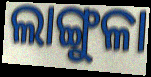
ଲାଙ୍ଗୁଳା